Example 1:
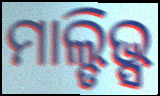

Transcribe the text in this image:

ମାଲ୍ଡିଭ୍ସ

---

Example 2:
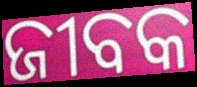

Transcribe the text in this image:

ଜୀବକ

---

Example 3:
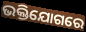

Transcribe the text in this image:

ଭକ୍ତିଯୋଗରେ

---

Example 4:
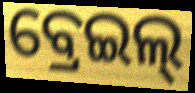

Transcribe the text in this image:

ବ୍ରେଇଲ୍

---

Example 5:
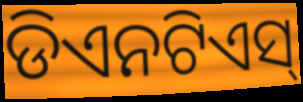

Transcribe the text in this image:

ଡିଏନଟିଏସ୍